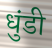
धुंडी